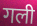
गली